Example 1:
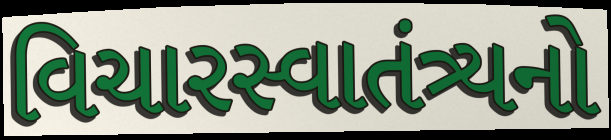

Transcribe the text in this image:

વિચારસ્વાતંત્ર્યનો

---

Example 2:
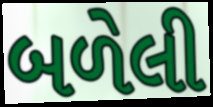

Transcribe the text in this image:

બળેલી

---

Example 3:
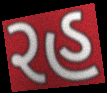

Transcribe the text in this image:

રહ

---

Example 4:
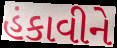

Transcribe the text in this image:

હંકાવીને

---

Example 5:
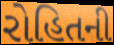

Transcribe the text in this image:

રોહિતની